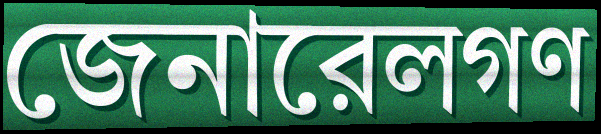
জেনারেলগণ